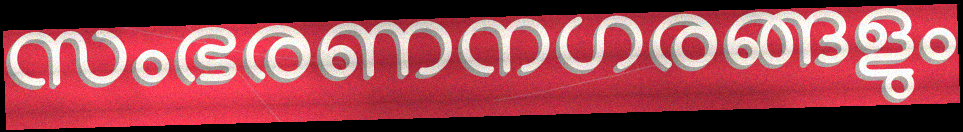
സംഭരണനഗരങ്ങളും